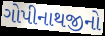
ગોપીનાથજીનો